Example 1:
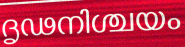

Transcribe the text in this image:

ദൃഢനിശ്ചയം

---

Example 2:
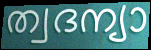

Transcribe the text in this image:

ത്വദന്യാ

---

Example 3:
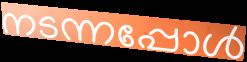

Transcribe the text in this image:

നടന്നപ്പോൾ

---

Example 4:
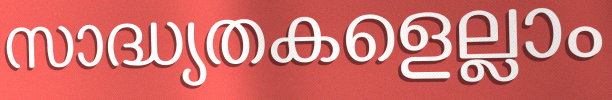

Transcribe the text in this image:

സാദ്ധ്യതകളെല്ലാം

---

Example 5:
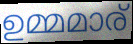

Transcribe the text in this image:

ഉമ്മമാര്